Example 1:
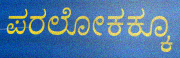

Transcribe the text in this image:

ಪರಲೋಕಕ್ಕೂ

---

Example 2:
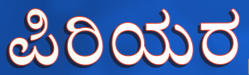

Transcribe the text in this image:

ಪಿರಿಯರ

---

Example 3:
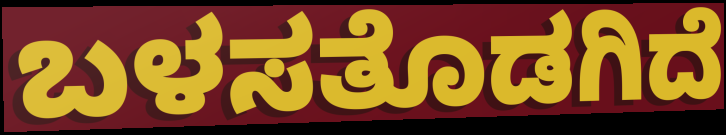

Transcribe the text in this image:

ಬಳಸತೊಡಗಿದೆ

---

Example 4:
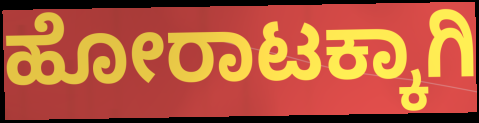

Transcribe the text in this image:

ಹೋರಾಟಕ್ಕಾಗಿ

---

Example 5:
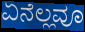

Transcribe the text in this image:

ಏನೆಲ್ಲವೂ